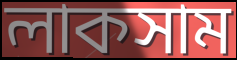
লাকসাম